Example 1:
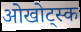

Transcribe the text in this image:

ओखोट्स्क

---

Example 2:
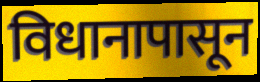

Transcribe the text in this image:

विधानापासून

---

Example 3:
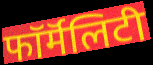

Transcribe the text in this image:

फॉर्मॅलिटी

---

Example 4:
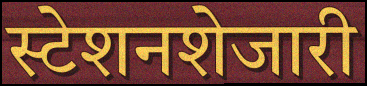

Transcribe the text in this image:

स्टेशनशेजारी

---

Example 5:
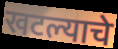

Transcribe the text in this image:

खटल्याचे